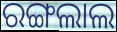
ରଙ୍ଗଲାଲ